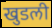
खुडली